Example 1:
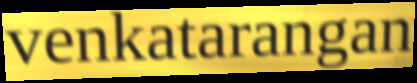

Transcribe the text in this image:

venkatarangan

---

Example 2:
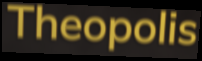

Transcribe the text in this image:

Theopolis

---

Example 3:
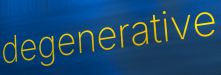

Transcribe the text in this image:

degenerative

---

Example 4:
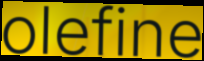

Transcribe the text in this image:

olefine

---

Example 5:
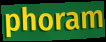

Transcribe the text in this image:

phoram